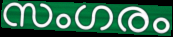
സംഗരം